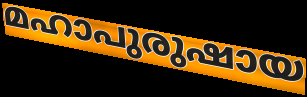
മഹാപുരുഷായ